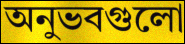
অনুভবগুলো